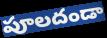
పూలదండా